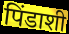
पिंडाशी